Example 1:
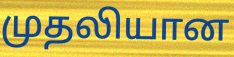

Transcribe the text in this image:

முதலியான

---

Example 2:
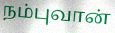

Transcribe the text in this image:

நம்புவான்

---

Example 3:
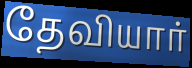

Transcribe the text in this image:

தேவியார்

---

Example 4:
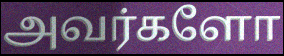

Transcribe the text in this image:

அவர்களோ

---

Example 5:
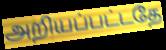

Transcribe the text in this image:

அறியப்பட்டதே